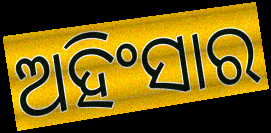
ଅହିଂସାର